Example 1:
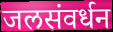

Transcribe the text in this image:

जलसंवर्धन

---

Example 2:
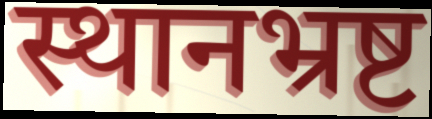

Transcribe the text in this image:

स्थानभ्रष्ट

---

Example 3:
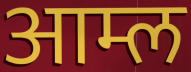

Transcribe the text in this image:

आम्ल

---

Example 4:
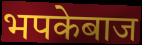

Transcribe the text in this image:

भपकेबाज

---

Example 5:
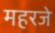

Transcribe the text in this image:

महरजे